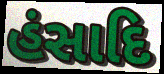
હંસાદિ